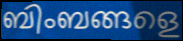
ബിംബങ്ങളെ